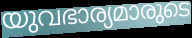
യുവഭാര്യമാരുടെ